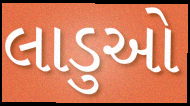
લાડુઓ